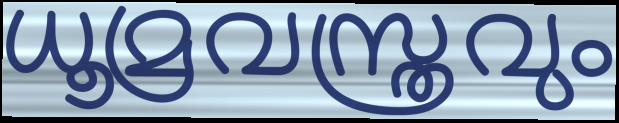
ധൂമ്രവസ്ത്രവും